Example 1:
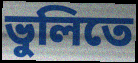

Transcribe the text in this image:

ভুলিতে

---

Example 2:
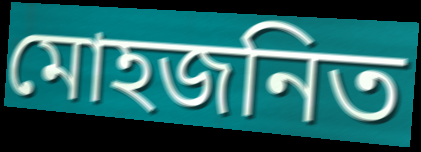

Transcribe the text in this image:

মোহজনিত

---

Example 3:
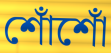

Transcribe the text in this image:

শোঁশোঁ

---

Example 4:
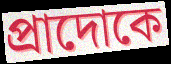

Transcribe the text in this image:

প্রাদোকে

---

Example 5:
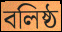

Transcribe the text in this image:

বলিষ্ঠ